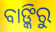
ବାଙ୍କିରୁ